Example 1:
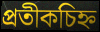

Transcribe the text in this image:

প্ৰতীকচিহ্ন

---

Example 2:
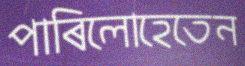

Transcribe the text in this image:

পাৰিলোহেতেন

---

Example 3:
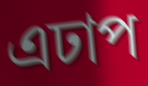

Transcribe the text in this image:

এঢাপ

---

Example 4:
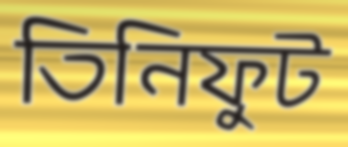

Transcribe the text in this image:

তিনিফুট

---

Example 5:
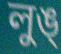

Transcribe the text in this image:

লুঙ্